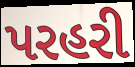
પરહરી